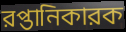
রপ্তানিকারক